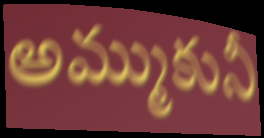
అమ్ముకునీ